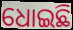
ଧୋଇଛି